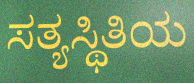
ಸತ್ಯಸ್ಥಿತಿಯ